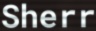
Sherr